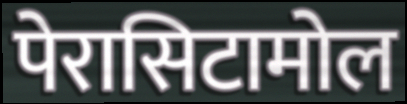
पेरासिटामोल